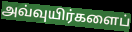
அவ்வுயிர்களைப்